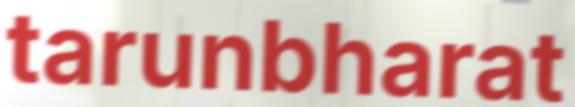
tarunbharat